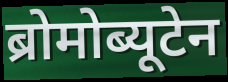
ब्रोमोब्यूटेन